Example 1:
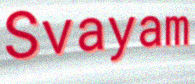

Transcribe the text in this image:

Svayam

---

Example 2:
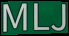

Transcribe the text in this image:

MLJ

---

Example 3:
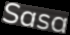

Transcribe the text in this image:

Sasa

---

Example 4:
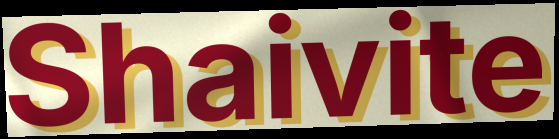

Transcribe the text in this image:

Shaivite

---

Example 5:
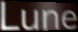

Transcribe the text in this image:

Lune